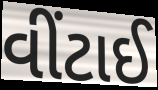
વીંટાઈ